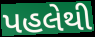
પહલેથી